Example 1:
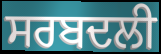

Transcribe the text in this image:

ਸਰਬਦਲੀ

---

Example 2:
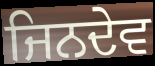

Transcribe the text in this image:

ਜਿਨਦੇਵ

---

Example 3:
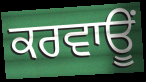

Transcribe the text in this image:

ਕਰਵਾਊਂ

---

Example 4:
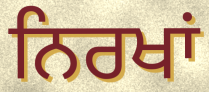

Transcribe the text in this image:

ਨਿਰਖਾਂ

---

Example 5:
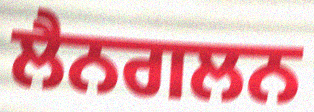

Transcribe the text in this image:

ਲੈਨਗਲਨ